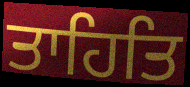
ਤਾਹਿਤਿ